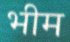
भीम